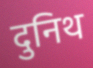
दुनिथ